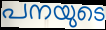
പനയുടെ